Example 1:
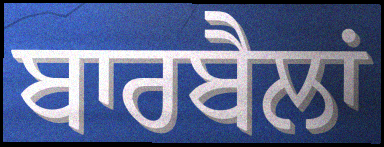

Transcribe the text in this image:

ਬਾਰਬੈਲਾਂ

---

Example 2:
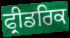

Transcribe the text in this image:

ਫ੍ਰੀਡਰਿਕ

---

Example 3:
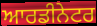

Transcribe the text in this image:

ਆਰਡੀਨੇਟਰ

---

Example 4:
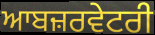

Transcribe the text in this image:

ਆਬਜ਼ਰਵੇਟਰੀ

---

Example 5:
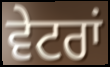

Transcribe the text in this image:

ਵੇਟਰਾਂ